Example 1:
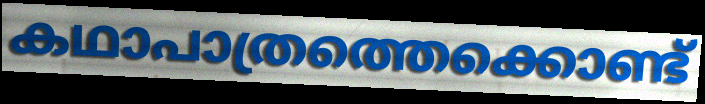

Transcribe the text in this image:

കഥാപാത്രത്തെക്കൊണ്ട്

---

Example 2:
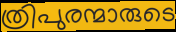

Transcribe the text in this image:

ത്രിപുരന്മാരുടെ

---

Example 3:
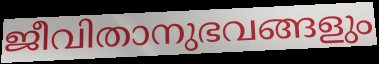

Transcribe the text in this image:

ജീവിതാനുഭവങ്ങളും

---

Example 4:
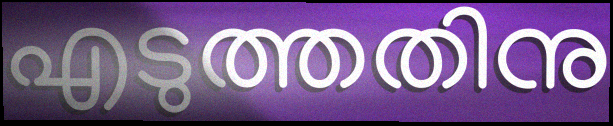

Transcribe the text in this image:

എടുത്തതിനു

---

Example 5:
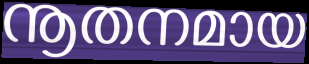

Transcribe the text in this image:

നൂതനമായ